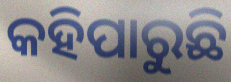
କହିପାରୁଛି